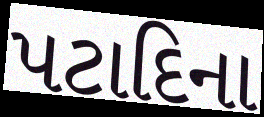
પટાદિના